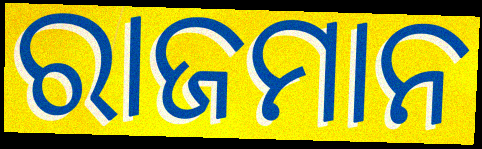
ରାଜମାନ